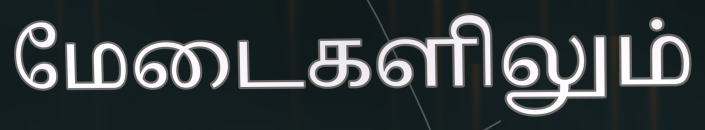
மேடைகளிலும்